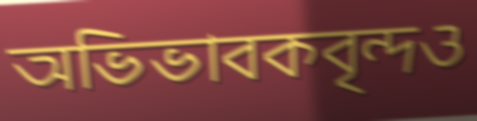
অভিভাবকবৃন্দও